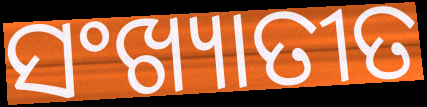
ସଂଖ୍ୟାତୀତ